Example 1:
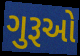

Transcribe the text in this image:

ગુરૂઓ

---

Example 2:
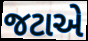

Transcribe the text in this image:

જટાએ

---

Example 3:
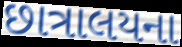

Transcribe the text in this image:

છાત્રાલયના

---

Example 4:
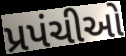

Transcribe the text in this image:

પ્રપંચીઓ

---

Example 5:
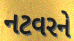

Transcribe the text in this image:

નટવરને